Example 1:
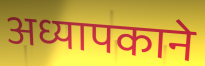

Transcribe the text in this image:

अध्यापकाने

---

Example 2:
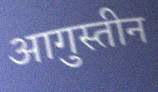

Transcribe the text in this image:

आगुस्तीन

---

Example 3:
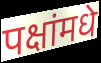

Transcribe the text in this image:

पक्षांमधे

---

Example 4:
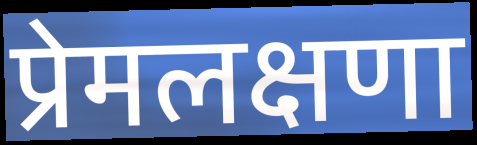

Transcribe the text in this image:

प्रेमलक्षणा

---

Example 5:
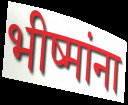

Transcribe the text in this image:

भीष्मांना